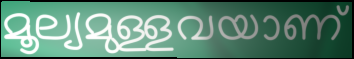
മൂല്യമുള്ളവയാണ്